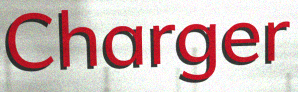
Charger